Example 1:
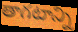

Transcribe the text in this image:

తాగటాన్ని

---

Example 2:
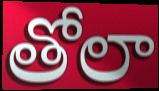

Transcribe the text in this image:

తోలా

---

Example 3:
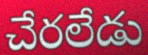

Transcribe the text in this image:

చేరలేడు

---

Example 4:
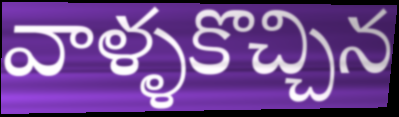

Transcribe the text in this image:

వాళ్ళకొచ్చిన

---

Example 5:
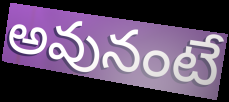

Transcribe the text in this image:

అవునంటే